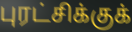
புரட்சிக்குக்